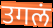
उगलं